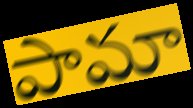
పామా